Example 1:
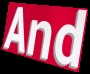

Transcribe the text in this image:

And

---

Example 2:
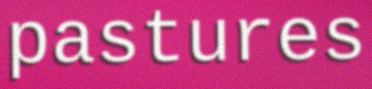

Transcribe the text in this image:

pastures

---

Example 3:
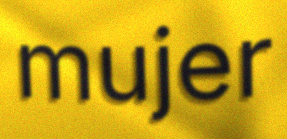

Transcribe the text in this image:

mujer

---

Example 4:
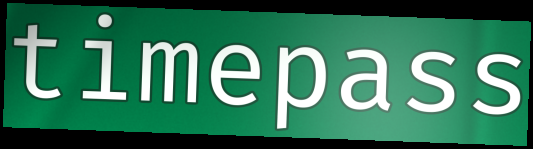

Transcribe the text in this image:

timepass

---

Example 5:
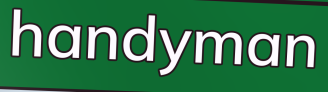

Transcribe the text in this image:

handyman